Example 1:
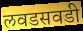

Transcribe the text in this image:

लवडसवडी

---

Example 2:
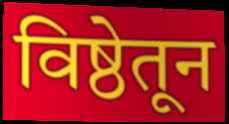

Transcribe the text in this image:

विष्ठेतून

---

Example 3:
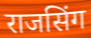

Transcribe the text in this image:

राजसिंग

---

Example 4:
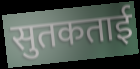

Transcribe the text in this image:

सुतकताई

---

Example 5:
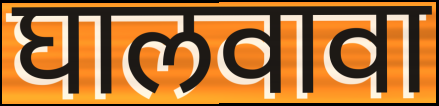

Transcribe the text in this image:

घालवावा